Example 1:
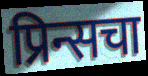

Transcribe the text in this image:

प्रिन्सचा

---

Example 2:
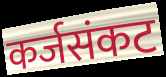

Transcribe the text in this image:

कर्जसंकट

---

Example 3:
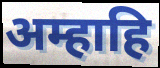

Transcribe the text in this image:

अम्हाहि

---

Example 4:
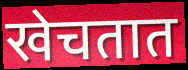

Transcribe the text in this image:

खेचतात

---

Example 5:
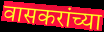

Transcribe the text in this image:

वासकरांच्या